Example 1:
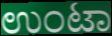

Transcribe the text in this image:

ಉಂಟಾ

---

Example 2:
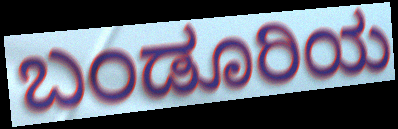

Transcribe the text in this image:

ಬಂಡೂರಿಯ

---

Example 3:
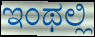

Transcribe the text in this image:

ಇಂಥಲ್ಲಿ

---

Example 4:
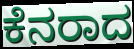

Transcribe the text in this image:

ಕೆನರಾದ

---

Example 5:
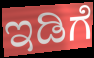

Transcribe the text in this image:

ಇಡಿಗೆ